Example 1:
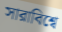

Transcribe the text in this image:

সারাবিশ্বে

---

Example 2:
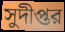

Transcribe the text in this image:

সুদীপ্তর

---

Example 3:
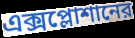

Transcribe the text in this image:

এক্সপ্লোশানের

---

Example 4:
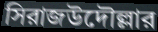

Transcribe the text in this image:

সিরাজউদৌল্লার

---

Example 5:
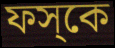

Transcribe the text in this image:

ফস্‌কে